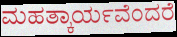
ಮಹತ್ಕಾರ್ಯವೆಂದರೆ